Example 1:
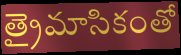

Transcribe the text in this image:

త్రైమాసికంతో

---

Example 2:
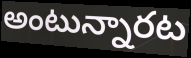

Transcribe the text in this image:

అంటున్నారట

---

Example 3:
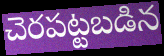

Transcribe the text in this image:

చెరపట్టబడిన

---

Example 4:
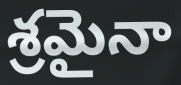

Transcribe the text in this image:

శ్రమైనా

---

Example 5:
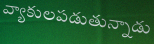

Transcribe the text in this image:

వ్యాకులపడుతున్నాడు